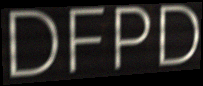
DFPD